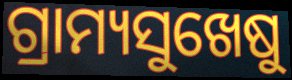
ଗ୍ରାମ୍ୟସୁଖେଷୁ